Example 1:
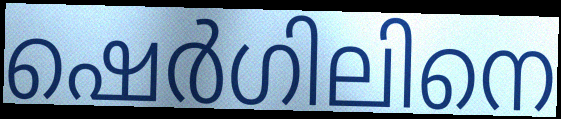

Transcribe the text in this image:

ഷെർഗിലിനെ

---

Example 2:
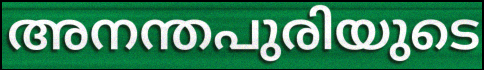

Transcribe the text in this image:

അനന്തപുരിയുടെ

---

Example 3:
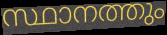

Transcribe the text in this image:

സ്ഥാനത്തും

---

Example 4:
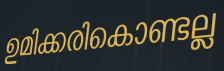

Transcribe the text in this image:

ഉമിക്കരികൊണ്ടല്ല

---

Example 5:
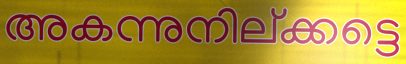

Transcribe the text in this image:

അകന്നുനില്ക്കട്ടെ